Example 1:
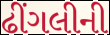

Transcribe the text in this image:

ઢીંગલીની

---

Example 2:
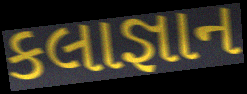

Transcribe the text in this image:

કલાજ્ઞાન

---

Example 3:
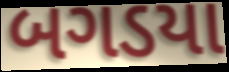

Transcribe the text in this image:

બગડયા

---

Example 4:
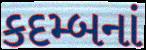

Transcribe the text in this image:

કદમ્બનાં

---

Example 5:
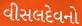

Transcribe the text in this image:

વીસલદેવનો